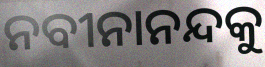
ନବୀନାନନ୍ଦକୁ